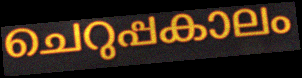
ചെറുപ്പകാലം